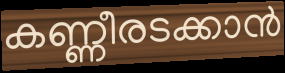
കണ്ണീരടക്കാൻ